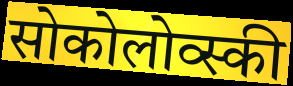
सोकोलोव्स्की